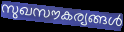
സുഖസൗകര്യങ്ങൾ